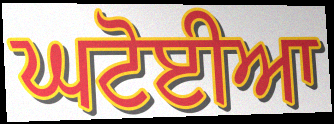
ਘਟੋਈਆ